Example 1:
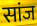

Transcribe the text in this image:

सांज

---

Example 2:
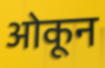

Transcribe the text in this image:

ओकून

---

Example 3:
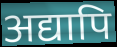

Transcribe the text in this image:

अद्यापि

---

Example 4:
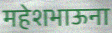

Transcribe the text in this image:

महेशभाऊना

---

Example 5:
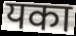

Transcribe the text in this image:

यका